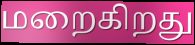
மறைகிறது